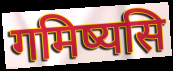
गमिष्यसि